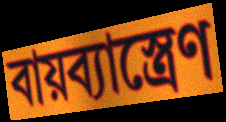
বায়ব্যাস্ত্রেণ